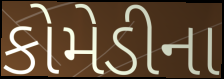
કોમેડીના